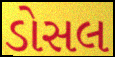
ડોસલ